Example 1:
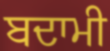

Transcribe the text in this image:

ਬਦਾਮੀ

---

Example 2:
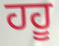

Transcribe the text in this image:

ਹਹੂ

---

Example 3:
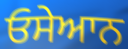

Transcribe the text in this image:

ਓਸੇਆਨ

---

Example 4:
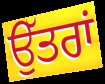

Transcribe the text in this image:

ਉੱਤਰਾਂ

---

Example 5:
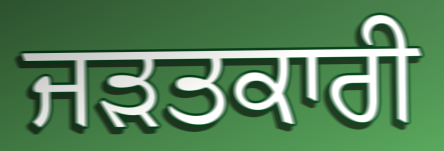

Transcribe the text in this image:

ਜੜਤਕਾਰੀ